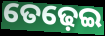
ତେଢ଼େଇ